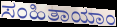
ಸಂಹಿತಾಯಾಂ